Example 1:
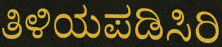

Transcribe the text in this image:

ತಿಳಿಯಪಡಿಸಿರಿ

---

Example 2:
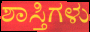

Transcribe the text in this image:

ಶಾಸ್ತಿಗಳು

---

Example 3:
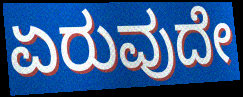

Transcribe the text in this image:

ಏರುವುದೇ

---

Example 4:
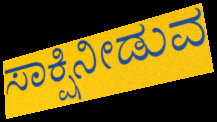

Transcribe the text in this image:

ಸಾಕ್ಷಿನೀಡುವ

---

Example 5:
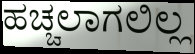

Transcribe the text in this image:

ಹಚ್ಚಲಾಗಲಿಲ್ಲ